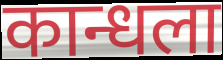
कान्धला